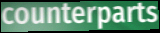
counterparts